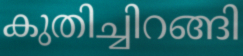
കുതിച്ചിറങ്ങി